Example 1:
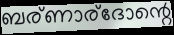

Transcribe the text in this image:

ബര്ണാര്ദോന്റെ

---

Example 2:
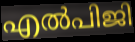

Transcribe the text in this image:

എൽപിജി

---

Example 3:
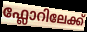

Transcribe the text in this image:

ഫ്ലോറിലേക്ക്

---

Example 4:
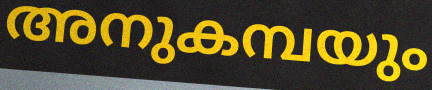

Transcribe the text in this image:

അനുകമ്പയും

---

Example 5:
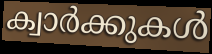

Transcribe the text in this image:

ക്വാർക്കുകൾ